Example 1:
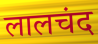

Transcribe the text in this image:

लालचंद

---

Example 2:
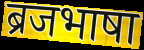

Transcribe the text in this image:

ब्रजभाषा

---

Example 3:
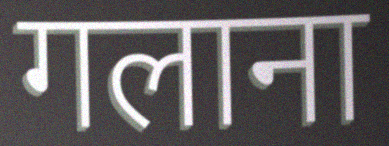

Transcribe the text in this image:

गलाना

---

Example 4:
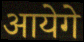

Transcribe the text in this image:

आयेगे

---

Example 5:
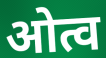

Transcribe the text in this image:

ओत्व